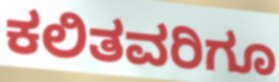
ಕಲಿತವರಿಗೂ